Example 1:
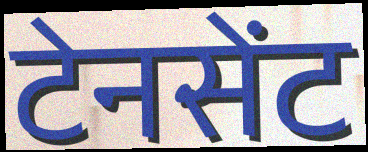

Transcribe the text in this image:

टेनसेंट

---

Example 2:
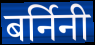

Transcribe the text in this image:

बर्निनी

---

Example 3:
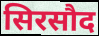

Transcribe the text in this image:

सिरसौद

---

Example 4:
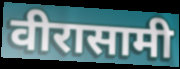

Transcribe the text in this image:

वीरासामी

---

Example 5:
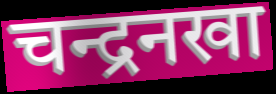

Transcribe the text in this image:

चन्द्रनखा